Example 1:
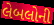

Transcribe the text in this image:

લેબલોની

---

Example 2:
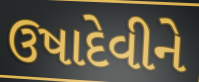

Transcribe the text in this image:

ઉષાદેવીને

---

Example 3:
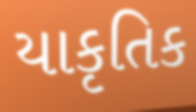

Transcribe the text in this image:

યાકૃતિક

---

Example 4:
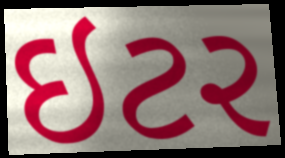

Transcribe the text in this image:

ઇટર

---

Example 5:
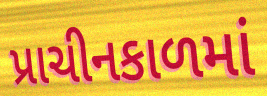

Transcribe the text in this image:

પ્રાચીનકાળમાં